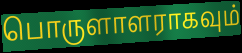
பொருளாளராகவும்